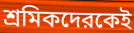
শ্রমিকদেরকেই